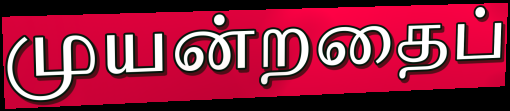
முயன்றதைப்